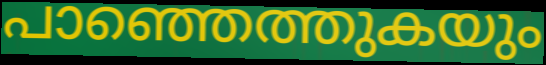
പാഞ്ഞെത്തുകയും